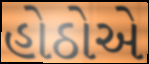
હોઠોએ